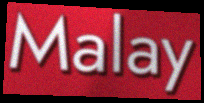
Malay